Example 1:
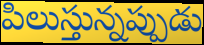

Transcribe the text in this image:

పిలుస్తున్నప్పుడు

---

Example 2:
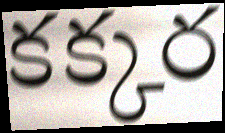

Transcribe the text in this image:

కక్కర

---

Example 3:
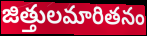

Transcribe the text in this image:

జిత్తులమారితనం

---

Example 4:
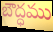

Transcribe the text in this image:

బౌద్ధము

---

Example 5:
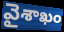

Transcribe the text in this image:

వైశాఖం